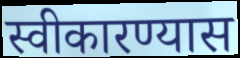
स्वीकारण्यास